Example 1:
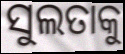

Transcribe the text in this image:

ସୁଲତାକୁ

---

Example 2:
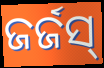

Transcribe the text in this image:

ଜର୍ଜସ୍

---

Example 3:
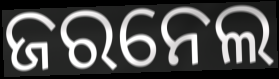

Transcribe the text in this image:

ଜରନେଲ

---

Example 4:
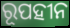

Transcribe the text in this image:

ରୂପହୀନ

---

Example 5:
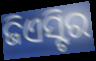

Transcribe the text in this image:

ଜିଏସ୍ଟିର